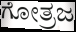
ಗೋತ್ರಜ